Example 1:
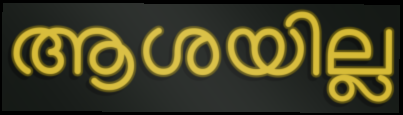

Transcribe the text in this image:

ആശയില്ല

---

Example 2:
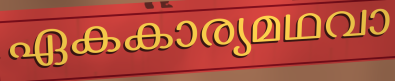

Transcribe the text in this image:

ഏകകാര്യമഥവാ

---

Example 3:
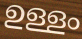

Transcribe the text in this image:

ഉള്ളം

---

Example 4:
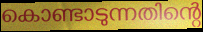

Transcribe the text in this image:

കൊണ്ടാടുന്നതിന്റെ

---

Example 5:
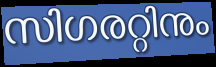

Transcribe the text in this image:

സിഗരറ്റിനും